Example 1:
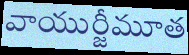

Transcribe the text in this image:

వాయుర్జీమూత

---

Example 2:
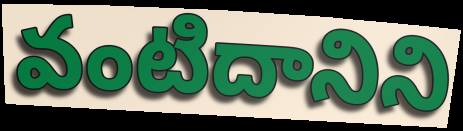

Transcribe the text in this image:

వంటిదానిని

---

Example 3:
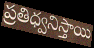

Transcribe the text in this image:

ప్రతిధ్వనిస్తాయి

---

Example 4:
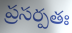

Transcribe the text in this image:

ప్రసర్పతః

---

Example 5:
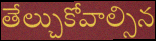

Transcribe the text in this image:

తేల్చుకోవాల్సిన